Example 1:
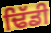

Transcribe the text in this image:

ਢਿੱਡੀ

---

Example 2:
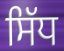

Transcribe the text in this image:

ਸਿੱਧ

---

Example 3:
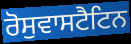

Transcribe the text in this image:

ਰੋਸੁਵਾਸਟੈਟਿਨ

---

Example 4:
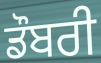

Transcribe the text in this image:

ਡੌਬਰੀ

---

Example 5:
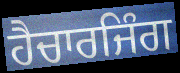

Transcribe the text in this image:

ਹੈਚਾਰਜਿੰਗ